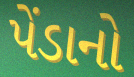
પેંડાનો